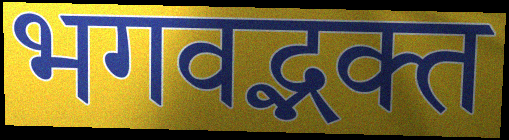
भगवद्भक्त